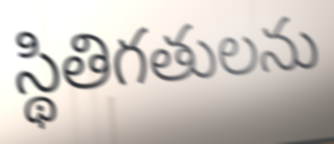
స్థితిగతులను